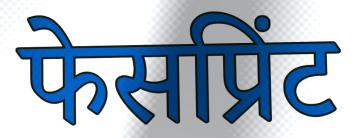
फेसप्रिंट